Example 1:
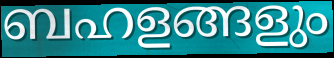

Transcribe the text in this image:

ബഹളങ്ങളും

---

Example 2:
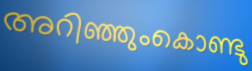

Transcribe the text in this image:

അറിഞ്ഞുംകൊണ്ടു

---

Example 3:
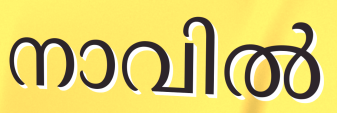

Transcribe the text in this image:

നാവിൽ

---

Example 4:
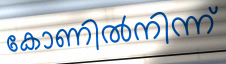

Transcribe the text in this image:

കോണിൽനിന്ന്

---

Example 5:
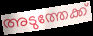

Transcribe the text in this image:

അടുത്തേക്ക്